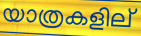
യാത്രകളില്